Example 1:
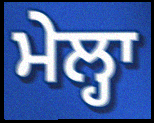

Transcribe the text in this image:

ਮੇਲ੍ਹਾ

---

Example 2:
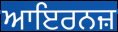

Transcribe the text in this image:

ਆਇਰਨਜ਼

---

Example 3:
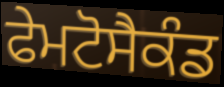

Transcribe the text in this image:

ਫੇਮਟੋਸੈਕੰਡ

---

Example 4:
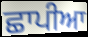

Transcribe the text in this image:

ਛਾਪੀਆ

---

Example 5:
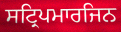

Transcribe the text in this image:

ਸਟ੍ਰਿਪਮਾਰਜਿਨ